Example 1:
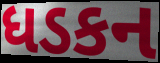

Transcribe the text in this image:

ધડકન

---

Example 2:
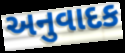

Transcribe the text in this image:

અનુવાદક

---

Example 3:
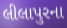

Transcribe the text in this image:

લીલાપુરના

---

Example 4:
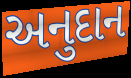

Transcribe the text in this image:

અનુદાન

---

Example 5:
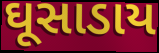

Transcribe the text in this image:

ઘૂસાડાય